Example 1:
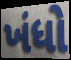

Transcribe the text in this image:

ખંધો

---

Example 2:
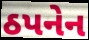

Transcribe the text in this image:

ઠપનેન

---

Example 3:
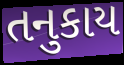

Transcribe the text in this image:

તનુકાય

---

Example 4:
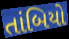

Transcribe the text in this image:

તાંબિયો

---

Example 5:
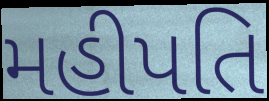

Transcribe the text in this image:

મહીપતિ